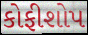
કોફીશોપ